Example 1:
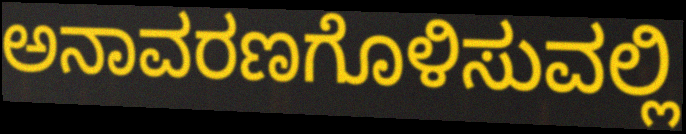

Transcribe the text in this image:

ಅನಾವರಣಗೊಳಿಸುವಲ್ಲಿ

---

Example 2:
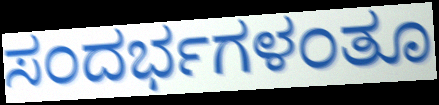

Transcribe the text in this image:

ಸಂದರ್ಭಗಳಂತೂ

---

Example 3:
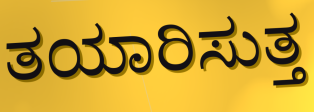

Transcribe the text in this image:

ತಯಾರಿಸುತ್ತ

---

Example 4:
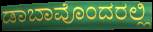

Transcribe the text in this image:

ಡಾಬಾವೊಂದರಲ್ಲಿ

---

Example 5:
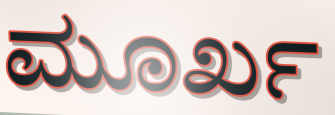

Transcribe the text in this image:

ಮೂರ್ಖ